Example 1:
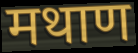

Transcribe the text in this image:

मथाण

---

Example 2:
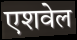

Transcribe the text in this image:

एशवेल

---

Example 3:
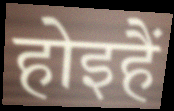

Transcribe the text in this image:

होइहैं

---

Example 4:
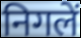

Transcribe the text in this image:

निगलें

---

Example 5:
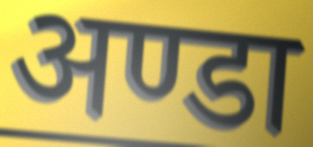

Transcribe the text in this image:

अण्डा